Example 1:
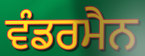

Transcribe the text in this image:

ਵੰਡਰਮੈਨ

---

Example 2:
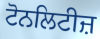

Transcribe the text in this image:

ਟੋਨਲਿਟੀਜ਼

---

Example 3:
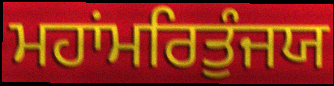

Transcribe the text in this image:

ਮਹਾਂਮਰਿਤੁੰਜਯ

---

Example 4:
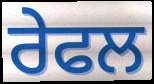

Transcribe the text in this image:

ਰੇਫਲ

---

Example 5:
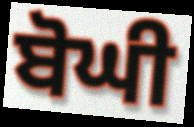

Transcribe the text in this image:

ਬੋਘੀ